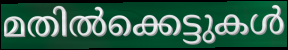
മതിൽക്കെട്ടുകൾ